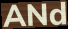
ANd